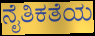
ನೈತಿಕತೆಯ